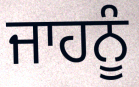
ਜਾਹਨੂੰ